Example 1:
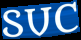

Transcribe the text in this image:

suc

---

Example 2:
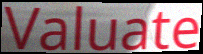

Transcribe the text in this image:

Valuate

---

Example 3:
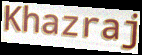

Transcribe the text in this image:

Khazraj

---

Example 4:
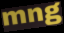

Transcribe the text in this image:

mng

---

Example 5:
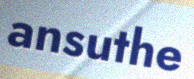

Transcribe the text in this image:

ansuthe